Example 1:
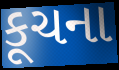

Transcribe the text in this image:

કૂચના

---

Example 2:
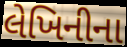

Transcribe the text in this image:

લેખિનીના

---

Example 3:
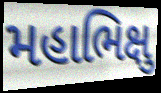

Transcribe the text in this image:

મહાભિક્ષુ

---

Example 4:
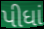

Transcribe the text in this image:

પીધાં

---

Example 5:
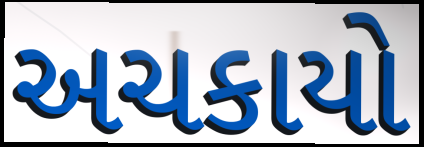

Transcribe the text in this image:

અચકાયો